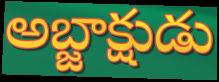
అబ్జాక్షుడు